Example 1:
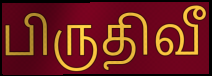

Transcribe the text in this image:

பிருதிவீ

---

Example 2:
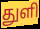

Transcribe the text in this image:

துளி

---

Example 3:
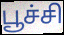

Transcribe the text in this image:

பூச்சி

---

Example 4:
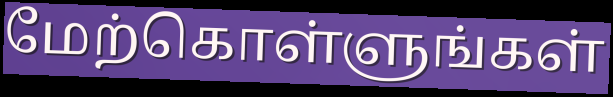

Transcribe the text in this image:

மேற்கொள்ளுங்கள்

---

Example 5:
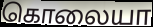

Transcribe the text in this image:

கொலையா